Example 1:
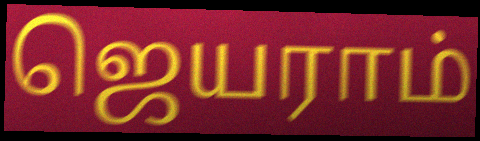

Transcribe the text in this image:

ஜெயராம்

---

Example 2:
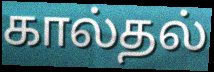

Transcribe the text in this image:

கால்தல்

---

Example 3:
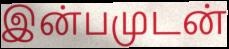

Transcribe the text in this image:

இன்பமுடன்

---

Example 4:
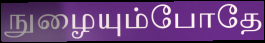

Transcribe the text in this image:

நுழையும்போதே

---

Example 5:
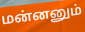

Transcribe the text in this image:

மன்னனும்